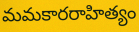
మమకారరాహిత్యం